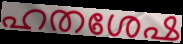
ഹതശേഷ